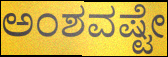
ಅಂಶವಷ್ಟೇ